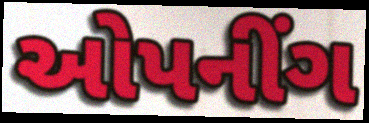
ઓપનીંગ